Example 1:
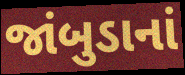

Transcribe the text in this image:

જાંબુડાનાં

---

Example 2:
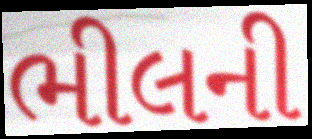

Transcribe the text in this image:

ભીલની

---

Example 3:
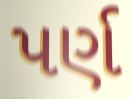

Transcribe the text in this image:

પર્ણ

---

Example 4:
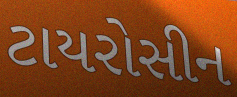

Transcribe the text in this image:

ટાયરોસીન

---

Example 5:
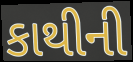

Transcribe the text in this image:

કાથીની